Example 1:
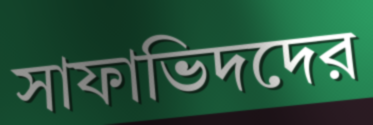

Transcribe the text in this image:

সাফাভিদদের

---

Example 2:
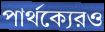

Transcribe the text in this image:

পার্থক্যেরও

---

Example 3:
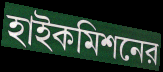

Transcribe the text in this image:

হাইকমিশনের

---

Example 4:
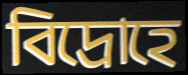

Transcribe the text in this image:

বিদ্রোহে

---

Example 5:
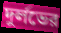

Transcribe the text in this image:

দুর্লভের